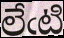
లేఁటి